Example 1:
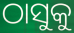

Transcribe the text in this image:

ଠାସୁକୁ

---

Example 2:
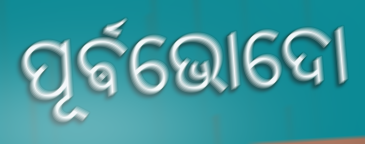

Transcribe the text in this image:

ପୂର୍ଵଭୋଦୋ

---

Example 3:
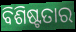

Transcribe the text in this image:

ବିଶିଷ୍ଟତାର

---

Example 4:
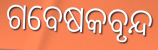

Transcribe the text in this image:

ଗବେଷକବୃନ୍ଦ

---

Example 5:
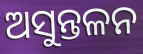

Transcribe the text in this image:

ଅସୁନ୍ତଳନ